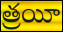
త్రయీ